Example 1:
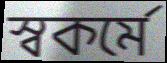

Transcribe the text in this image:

স্বকর্মে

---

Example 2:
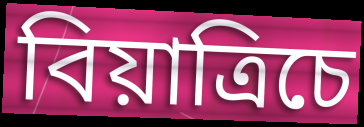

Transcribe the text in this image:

বিয়াত্রিচে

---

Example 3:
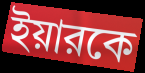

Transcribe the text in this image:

ইয়ারকে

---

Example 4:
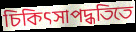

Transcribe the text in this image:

চিকিৎসাপদ্ধতিতে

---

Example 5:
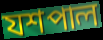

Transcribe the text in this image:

যশপাল